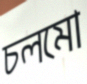
চলমো